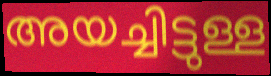
അയച്ചിട്ടുള്ള